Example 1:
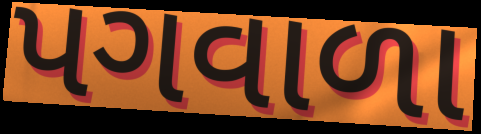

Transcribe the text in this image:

પગવાળા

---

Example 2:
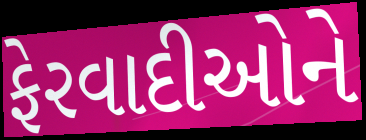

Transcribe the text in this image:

ફેરવાદીઓને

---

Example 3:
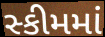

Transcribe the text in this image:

સ્કીમમાં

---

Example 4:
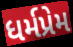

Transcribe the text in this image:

ધર્મપ્રેમ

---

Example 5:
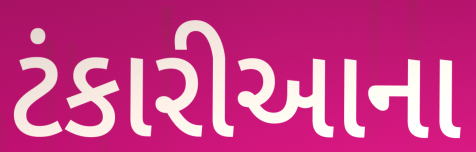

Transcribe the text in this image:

ટંકારીઆના